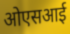
ओएसआई